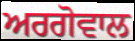
ਅਰਗੋਵਾਲ